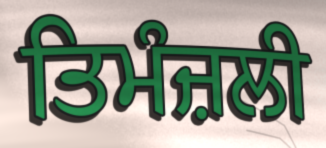
ਤਿਮੰਜ਼ਲੀ